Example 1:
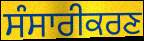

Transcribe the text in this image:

ਸੰਸਾਰੀਕਰਣ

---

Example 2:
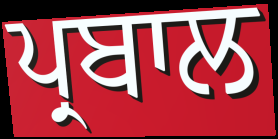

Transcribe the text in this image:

ਪ੍ਰਬਾਲ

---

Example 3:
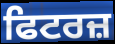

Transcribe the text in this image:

ਫਿਟਰਜ਼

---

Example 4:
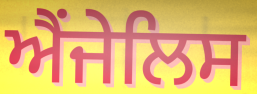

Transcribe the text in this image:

ਐਂਜੇਲਿਸ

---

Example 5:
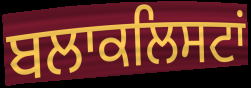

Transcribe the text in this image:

ਬਲਾਕਲਿਸਟਾਂ